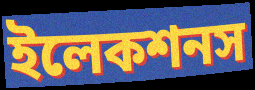
ইলেকশনস